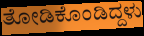
ತೋಡಿಕೊಂಡಿದ್ದಳು